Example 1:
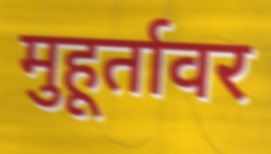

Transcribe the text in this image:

मुहूर्तावर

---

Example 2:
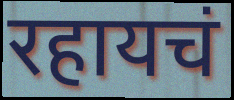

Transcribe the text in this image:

रहायचं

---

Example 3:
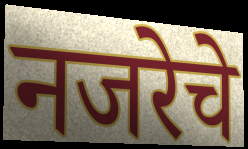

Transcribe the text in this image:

नजरेचे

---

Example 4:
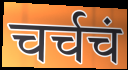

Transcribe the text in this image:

चर्चचं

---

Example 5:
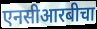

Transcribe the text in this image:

एनसीआरबीचा